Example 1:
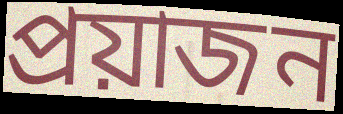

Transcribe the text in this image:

প্রয়াজন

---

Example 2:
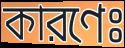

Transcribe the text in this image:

কারণেঃ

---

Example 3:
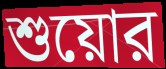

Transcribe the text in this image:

শুয়োর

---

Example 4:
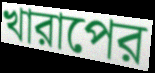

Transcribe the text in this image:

খারাপের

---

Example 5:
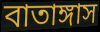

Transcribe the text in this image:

বাতাঙ্গাস